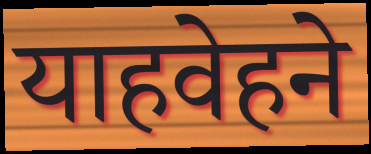
याहवेहने